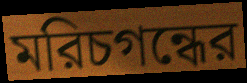
মরিচগন্ধের